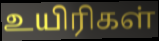
உயிரிகள்